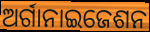
ଅର୍ଗାନାଇଜେଶନ